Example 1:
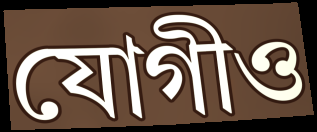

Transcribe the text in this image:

যোগীও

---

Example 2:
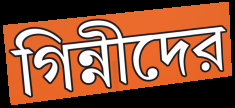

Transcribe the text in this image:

গিন্নীদের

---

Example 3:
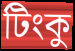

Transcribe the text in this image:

টিংকু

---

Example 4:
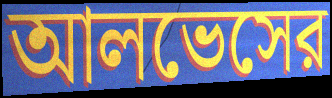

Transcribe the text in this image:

আলভেসের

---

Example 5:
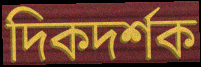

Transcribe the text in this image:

দিকদর্শক